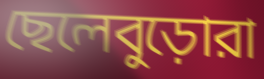
ছেলেবুড়োরা